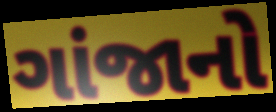
ગાંજાનો